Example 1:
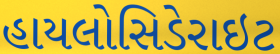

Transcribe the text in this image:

હાયલોસિડેરાઇટ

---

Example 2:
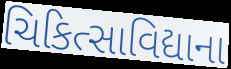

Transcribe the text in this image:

ચિકિત્સાવિદ્યાના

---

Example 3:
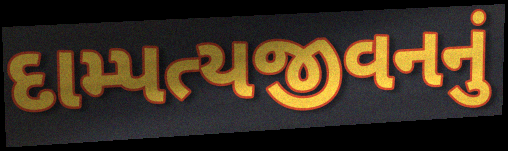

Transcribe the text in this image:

દામ્પત્યજીવનનું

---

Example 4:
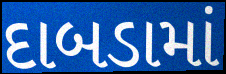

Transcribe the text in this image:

દાબડામાં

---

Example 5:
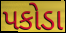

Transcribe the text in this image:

પકોડા